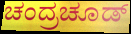
ಚಂದ್ರಚೂಡ್